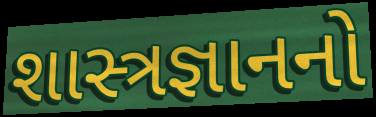
શાસ્ત્રજ્ઞાનનો